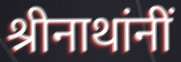
श्रीनाथांनीं